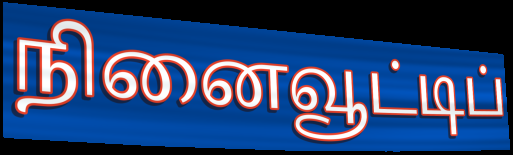
நினைவூட்டிப்